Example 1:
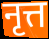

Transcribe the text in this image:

नृत्त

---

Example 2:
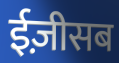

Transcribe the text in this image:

ईज़ीसब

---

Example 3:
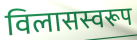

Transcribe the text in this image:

विलासस्वरूप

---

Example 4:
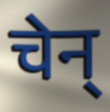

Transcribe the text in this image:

चेन्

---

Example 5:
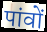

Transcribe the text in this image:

पांवों